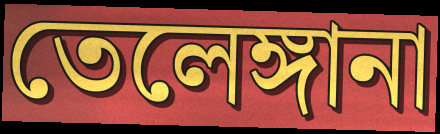
তেলেঙ্গানা